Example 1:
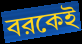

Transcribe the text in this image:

বরকেই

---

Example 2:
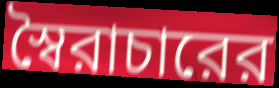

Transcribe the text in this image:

স্বৈরাচারের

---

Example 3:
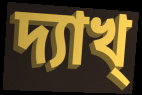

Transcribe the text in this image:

দ্যাখ্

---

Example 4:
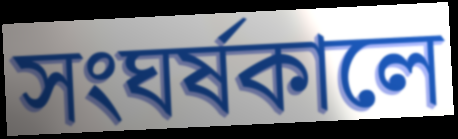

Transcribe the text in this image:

সংঘর্ষকালে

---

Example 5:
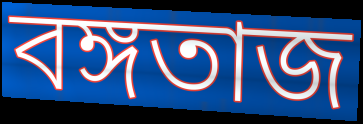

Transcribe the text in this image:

বঙ্গতাজ